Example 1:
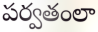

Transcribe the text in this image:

పర్వతంలా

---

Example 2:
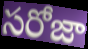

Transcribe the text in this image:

సరోజా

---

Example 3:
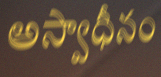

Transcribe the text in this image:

అస్వాధీనం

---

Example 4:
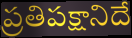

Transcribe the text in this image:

ప్రతిపక్షానిదే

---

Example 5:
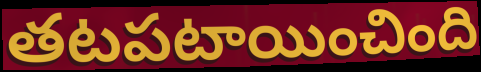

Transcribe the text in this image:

తటపటాయించింది